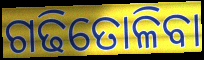
ଗଢିତୋଳିବା